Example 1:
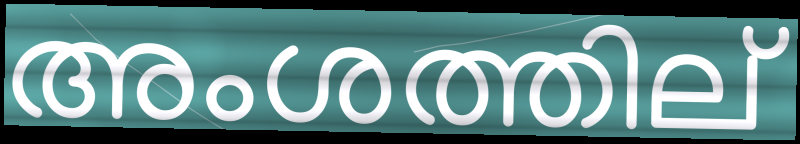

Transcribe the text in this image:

അംശത്തില്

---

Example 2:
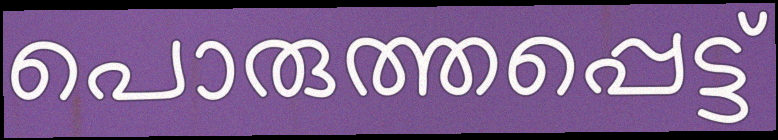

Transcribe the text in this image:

പൊരുത്തപ്പെട്ട്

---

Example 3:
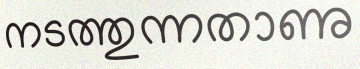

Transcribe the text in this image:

നടത്തുന്നതാണു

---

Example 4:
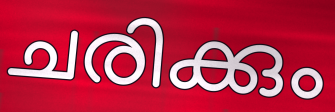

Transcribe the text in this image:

ചരിക്കും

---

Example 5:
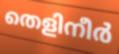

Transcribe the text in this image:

തെളിനീർ